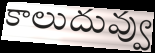
కాలుదువ్వు